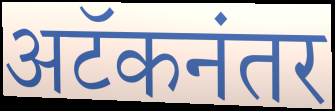
अटॅकनंतर